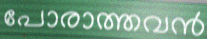
പോരാത്തവൻ